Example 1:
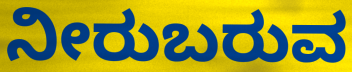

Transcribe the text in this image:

ನೀರುಬರುವ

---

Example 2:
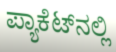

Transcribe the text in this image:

ಪ್ಯಾಕೆಟ್‍ನಲ್ಲಿ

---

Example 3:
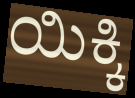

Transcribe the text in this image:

ಯಿಕ್ಕಿ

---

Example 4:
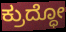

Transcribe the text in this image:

ಕ್ರುದ್ಧೋ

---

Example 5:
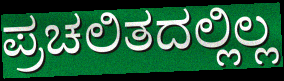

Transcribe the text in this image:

ಪ್ರಚಲಿತದಲ್ಲಿಲ್ಲ